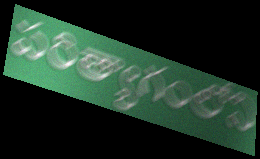
పరిత్యాగంలోని